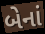
બેનાં